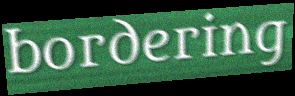
bordering